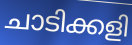
ചാടിക്കളി